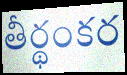
తీర్థంకర